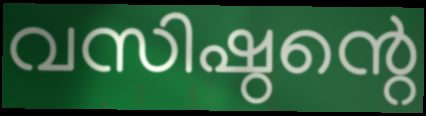
വസിഷ്ഠന്റെ